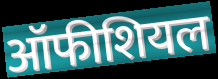
ऑफीशियल